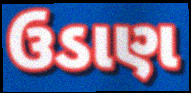
ઉડાણ